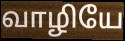
வாழியே